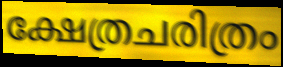
ക്ഷേത്രചരിത്രം